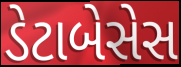
ડેટાબેસેસ